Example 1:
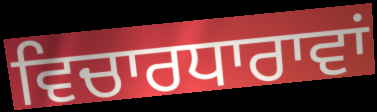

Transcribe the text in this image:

ਵਿਚਾਰਧਾਰਾਵਾਂ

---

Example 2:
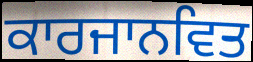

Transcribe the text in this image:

ਕਾਰਜਾਨਵਿਤ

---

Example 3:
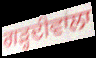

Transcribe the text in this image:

ਗਡ਼੍ਹਦੀਵਾਲਾ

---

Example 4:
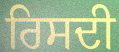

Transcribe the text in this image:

ਰਿਸਦੀ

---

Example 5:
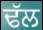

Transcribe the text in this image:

ਢੱਲ